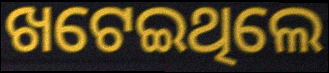
ଖଟେଇଥିଲେ